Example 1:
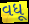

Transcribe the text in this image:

વધૂ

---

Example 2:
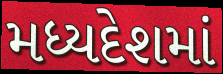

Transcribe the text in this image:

મધ્યદેશમાં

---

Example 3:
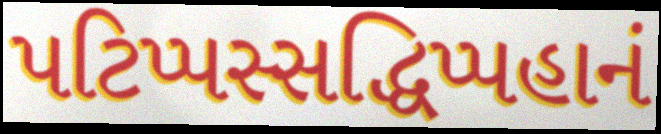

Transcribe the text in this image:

પટિપ્પસ્સદ્ધિપ્પહાનં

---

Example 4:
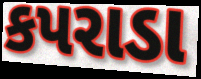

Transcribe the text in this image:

કપરાડા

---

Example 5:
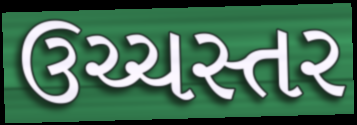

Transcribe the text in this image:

ઉચ્ચસ્તર